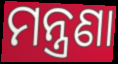
ମନ୍ତ୍ରଣା